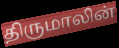
திருமாலின்